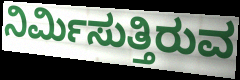
ನಿರ್ಮಿಸುತ್ತಿರುವ